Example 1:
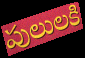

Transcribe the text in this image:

పులులకి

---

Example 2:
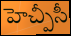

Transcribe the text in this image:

హెచ్పీసీ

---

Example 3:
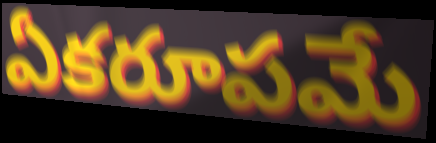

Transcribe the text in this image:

ఏకరూపమే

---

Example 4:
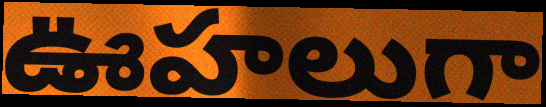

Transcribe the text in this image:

ఊహలుగా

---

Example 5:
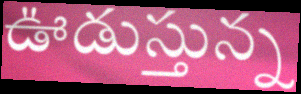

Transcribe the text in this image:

ఊడుస్తున్న